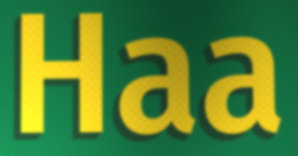
Haa